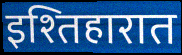
इश्तिहारात